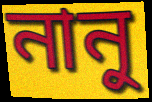
নানু